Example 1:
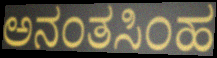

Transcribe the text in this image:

ಅನಂತಸಿಂಹ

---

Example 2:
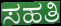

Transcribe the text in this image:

ಸಹತಿ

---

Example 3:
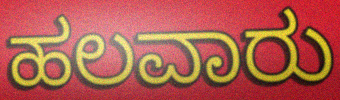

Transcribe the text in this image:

ಹಲವಾರು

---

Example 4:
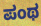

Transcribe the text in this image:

ಪಂಥ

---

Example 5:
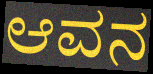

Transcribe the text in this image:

ಆವನ